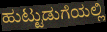
ಹುಟ್ಟುಡುಗೆಯಲ್ಲಿ